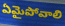
ఏమైపోవాలి